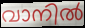
വാനിൽ